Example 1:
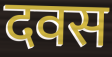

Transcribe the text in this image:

दवस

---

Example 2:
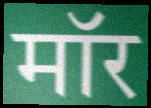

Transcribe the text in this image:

मॉर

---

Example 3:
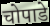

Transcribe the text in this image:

चोपाडे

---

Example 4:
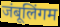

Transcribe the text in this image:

जंबूलिंगम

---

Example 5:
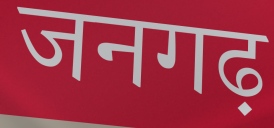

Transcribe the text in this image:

जनगढ़